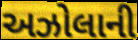
અઝોલાની